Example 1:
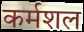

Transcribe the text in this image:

कर्मशल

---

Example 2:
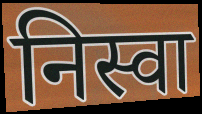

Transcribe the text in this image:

निस्वा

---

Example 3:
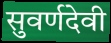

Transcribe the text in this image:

सुवर्णदेवी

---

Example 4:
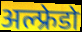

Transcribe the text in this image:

अल्फ्रेडो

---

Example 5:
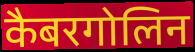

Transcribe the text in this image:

कैबरगोलिन